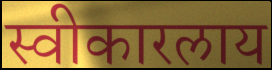
स्वीकारलाय